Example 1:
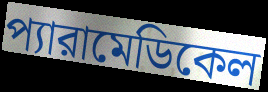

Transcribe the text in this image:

প্যারামেডিকেল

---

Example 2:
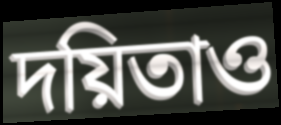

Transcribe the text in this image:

দয়িতাও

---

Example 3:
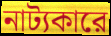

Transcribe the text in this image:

নাট্যকারে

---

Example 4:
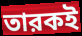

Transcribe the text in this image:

তারকই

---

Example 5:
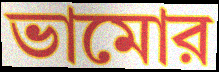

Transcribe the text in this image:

ভামোর